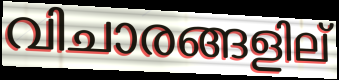
വിചാരങ്ങളില്